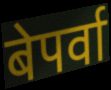
बेपर्वा